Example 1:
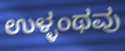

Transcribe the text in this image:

ಉಳ್ಳಂಥವು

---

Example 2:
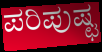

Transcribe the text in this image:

ಪರಿಪುಷ್ಟ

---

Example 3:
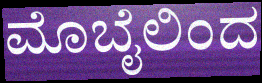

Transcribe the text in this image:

ಮೊಬೈಲಿಂದ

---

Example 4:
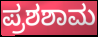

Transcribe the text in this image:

ಪ್ರಶಶಾಮ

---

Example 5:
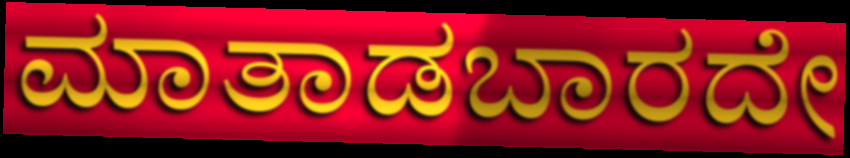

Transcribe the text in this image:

ಮಾತಾಡಬಾರದೇ